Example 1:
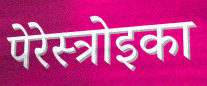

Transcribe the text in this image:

पेरेस्त्रोइका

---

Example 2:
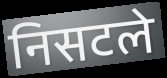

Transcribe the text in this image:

निसटले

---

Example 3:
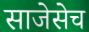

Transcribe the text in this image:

साजेसेच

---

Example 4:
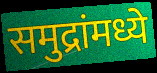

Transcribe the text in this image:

समुद्रांमध्ये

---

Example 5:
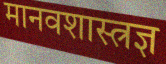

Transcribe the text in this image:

मानवशास्त्रज्ञ